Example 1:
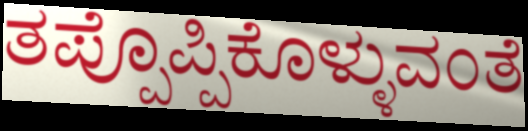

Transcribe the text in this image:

ತಪ್ಪೊಪ್ಪಿಕೊಳ್ಳುವಂತೆ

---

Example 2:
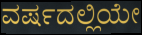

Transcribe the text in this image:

ವರ್ಷದಲ್ಲಿಯೇ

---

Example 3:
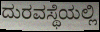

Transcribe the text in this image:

ದುರವಸ್ಥೆಯಲ್ಲಿ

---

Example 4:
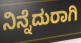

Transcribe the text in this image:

ನಿನ್ನೆದುರಾಗಿ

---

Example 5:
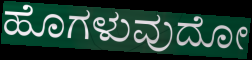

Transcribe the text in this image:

ಹೊಗಳುವುದೋ